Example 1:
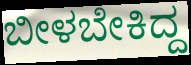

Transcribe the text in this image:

ಬೀಳಬೇಕಿದ್ದ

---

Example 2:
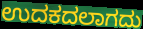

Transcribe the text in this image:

ಉದಕದಲಾಗದು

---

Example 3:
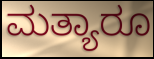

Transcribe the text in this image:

ಮತ್ಯಾರೂ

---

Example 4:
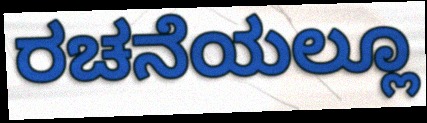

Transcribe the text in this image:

ರಚನೆಯಲ್ಲೂ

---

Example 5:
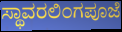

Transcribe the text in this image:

ಸ್ಥಾವರಲಿಂಗಪೂಜೆ